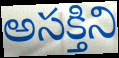
అసక్తిని